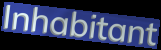
Inhabitant